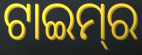
ଟାଇମ୍‌ର